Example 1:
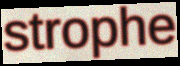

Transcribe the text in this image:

strophe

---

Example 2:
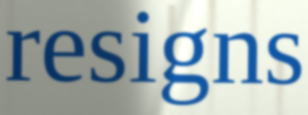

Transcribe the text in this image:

resigns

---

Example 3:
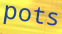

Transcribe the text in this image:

pots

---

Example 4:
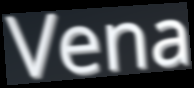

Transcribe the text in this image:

Vena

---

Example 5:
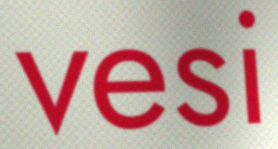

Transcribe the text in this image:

vesi